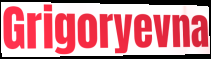
Grigoryevna